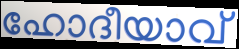
ഹോദീയാവ്